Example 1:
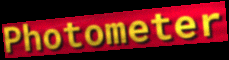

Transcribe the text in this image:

Photometer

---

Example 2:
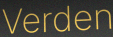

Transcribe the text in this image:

Verden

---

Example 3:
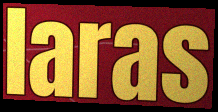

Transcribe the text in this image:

laras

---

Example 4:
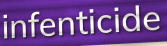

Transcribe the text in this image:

infenticide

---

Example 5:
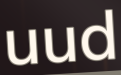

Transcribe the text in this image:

uud